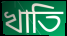
খাতি